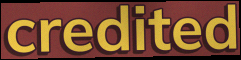
credited